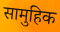
सामुहिक